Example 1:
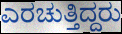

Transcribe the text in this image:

ಎರಚುತ್ತಿದ್ದರು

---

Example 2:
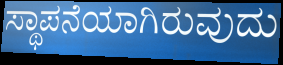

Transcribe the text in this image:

ಸ್ಥಾಪನೆಯಾಗಿರುವುದು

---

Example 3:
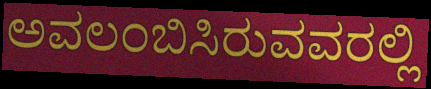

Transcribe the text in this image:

ಅವಲಂಬಿಸಿರುವವರಲ್ಲಿ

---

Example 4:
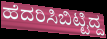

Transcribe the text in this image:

ಹೆದರಿಸಿಬಿಟ್ಟಿದ್ದ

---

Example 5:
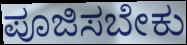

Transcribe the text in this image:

ಪೂಜಿಸಬೇಕು